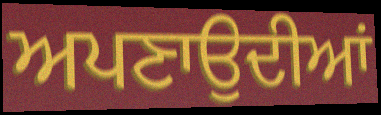
ਅਪਣਾਉਦੀਆਂ